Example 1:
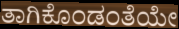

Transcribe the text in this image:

ತಾಗಿಕೊಂಡಂತೆಯೇ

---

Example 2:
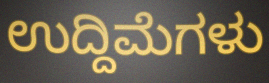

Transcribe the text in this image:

ಉದ್ದಿಮೆಗಳು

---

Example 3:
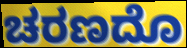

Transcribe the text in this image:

ಚರಣದೊ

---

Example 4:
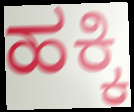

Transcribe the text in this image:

ಹಕ್ಕಿ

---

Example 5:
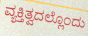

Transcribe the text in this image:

ವ್ಯಕ್ತಿತ್ವದಲ್ಲೊಂದು